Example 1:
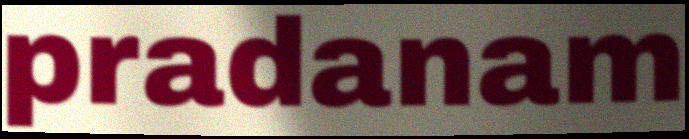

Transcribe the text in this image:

pradanam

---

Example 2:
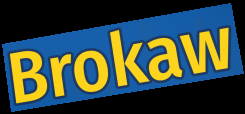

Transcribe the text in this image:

Brokaw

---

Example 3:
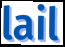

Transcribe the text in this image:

lail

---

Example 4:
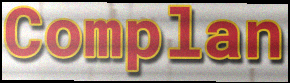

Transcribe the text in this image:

Complan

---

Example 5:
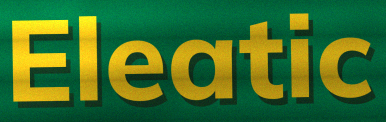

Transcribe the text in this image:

Eleatic